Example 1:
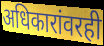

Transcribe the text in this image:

अधिकारांवरही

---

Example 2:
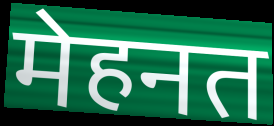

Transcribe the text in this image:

मेहनत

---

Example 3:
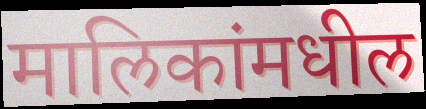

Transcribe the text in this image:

मालिकांमधील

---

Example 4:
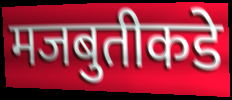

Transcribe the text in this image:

मजबुतीकडे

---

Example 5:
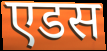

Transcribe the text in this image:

एडस